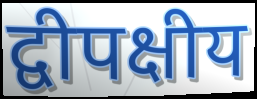
द्वीपक्षीय